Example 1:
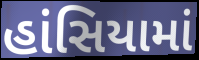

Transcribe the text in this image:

હાંસિયામાં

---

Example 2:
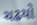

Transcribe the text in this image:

ચઢયો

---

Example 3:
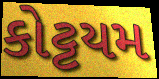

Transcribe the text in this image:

કોટ્ટયમ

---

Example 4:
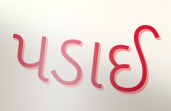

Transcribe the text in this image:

પડાઈ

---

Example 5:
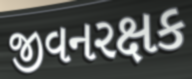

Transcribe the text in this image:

જીવનરક્ષક